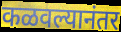
कळवल्यानंतर